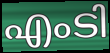
എംടി